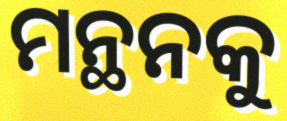
ମନ୍ଥନକୁ